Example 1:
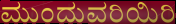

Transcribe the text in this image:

ಮುಂದುವರಿಯಿರಿ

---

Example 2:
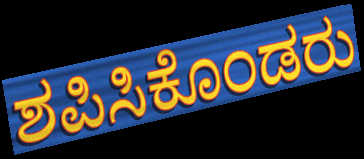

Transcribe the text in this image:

ಶಪಿಸಿಕೊಂಡರು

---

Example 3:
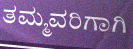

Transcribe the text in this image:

ತಮ್ಮವರಿಗಾಗಿ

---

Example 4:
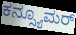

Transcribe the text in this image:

ಕನ್ಸ್ಯೂಮರ್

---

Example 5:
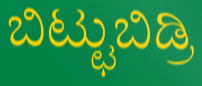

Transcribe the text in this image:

ಬಿಟ್ಟುಬಿಡ್ರಿ